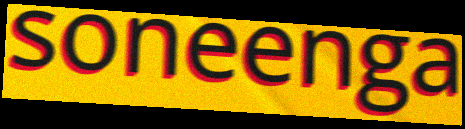
soneenga